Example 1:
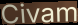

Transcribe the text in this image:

Civam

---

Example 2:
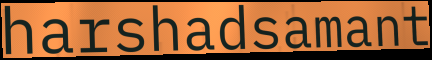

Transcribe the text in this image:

harshadsamant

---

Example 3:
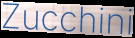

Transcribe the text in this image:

Zucchini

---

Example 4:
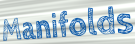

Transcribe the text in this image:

Manifolds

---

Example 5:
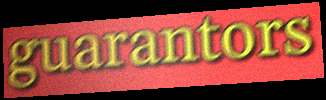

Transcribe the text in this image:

guarantors